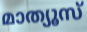
മാത്യൂസ്